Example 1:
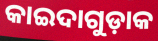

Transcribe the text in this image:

କାଇଦାଗୁଡ଼ାକ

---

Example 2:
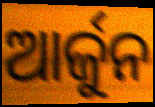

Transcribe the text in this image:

ଆର୍ଜୁନ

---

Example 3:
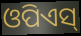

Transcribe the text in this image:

ଓପିଏସ୍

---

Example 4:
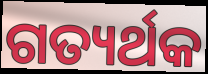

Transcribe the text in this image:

ଗତ୍ୟର୍ଥକ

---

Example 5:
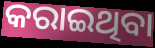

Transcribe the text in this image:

କରାଇଥିବା